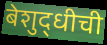
बेशुद्धीची